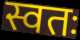
स्वतः